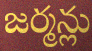
జర్మన్లు